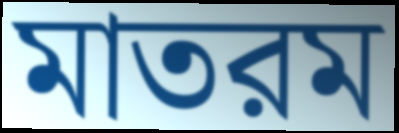
মাতরম